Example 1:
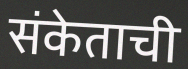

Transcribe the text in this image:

संकेताची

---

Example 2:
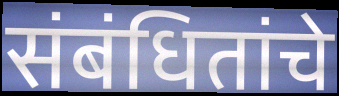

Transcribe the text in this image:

संबंधितांचे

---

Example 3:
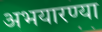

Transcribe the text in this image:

अभयारण्या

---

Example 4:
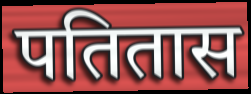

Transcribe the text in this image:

पतितास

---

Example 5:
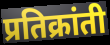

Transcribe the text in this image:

प्रतिक्रांती